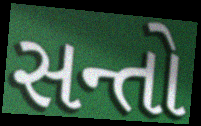
સન્તો